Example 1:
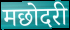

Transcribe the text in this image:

मछोदरी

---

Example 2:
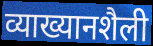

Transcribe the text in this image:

व्याख्यानशैली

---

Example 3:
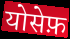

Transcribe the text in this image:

योसेफ़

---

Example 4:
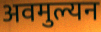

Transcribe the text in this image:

अवमुल्यन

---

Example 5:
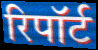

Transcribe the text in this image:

रिपॉर्ट